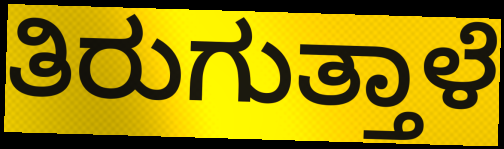
ತಿರುಗುತ್ತಾಳೆ